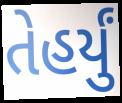
તેહર્યું